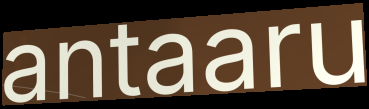
antaaru